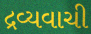
દ્રવ્યવાચી